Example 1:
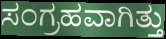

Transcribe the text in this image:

ಸಂಗ್ರಹವಾಗಿತ್ತು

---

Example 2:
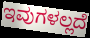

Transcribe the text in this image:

ಇವುಗಳಲ್ಲದೆ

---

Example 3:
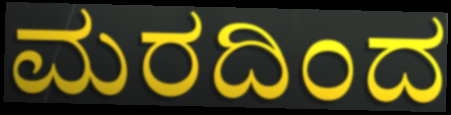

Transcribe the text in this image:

ಮರದಿಂದ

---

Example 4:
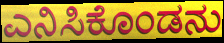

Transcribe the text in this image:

ಎನಿಸಿಕೊಂಡನು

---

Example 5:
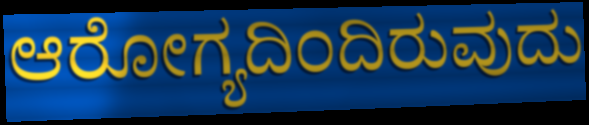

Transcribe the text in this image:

ಆರೋಗ್ಯದಿಂದಿರುವುದು